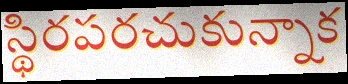
స్థిరపరచుకున్నాక